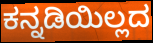
ಕನ್ನಡಿಯಿಲ್ಲದ